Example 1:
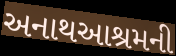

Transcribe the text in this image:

અનાથઆશ્રમની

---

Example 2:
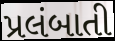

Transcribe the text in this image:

પ્રલંબાતી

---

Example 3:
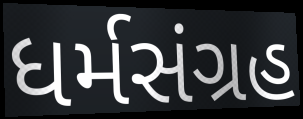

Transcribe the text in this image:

ધર્મસંગ્રહ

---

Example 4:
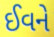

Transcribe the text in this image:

ઈવને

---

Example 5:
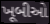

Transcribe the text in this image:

ખૂબીઓ